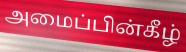
அமைப்பின்கீழ்